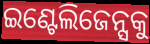
ଇଣ୍ଟେଲିଜେନ୍ସକୁ